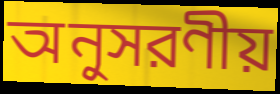
অনুসরণীয়